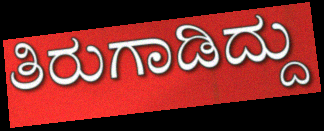
ತಿರುಗಾಡಿದ್ದು